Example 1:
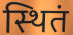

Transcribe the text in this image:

स्थितं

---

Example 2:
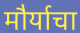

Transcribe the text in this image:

मौर्याचा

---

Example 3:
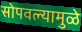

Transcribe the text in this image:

सोपवल्यामुळे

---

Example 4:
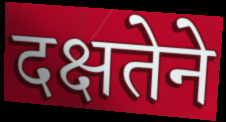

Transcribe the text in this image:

दक्षतेने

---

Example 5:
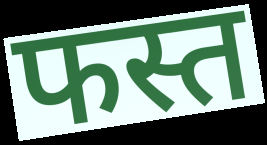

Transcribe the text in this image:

फस्त